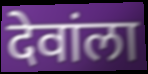
देवांला